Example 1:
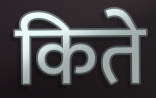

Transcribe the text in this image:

किते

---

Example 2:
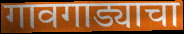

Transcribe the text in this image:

गावगाड्याचा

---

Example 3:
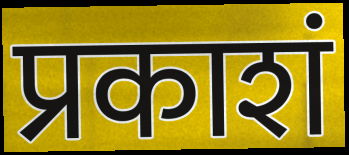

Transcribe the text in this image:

प्रकाशं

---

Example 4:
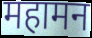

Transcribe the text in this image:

महामन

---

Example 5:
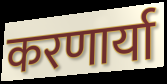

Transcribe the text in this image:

करणार्या